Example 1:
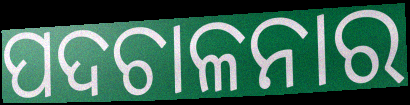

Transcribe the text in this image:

ପଦଚାଳନାର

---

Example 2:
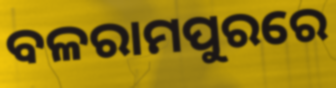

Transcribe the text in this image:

ବଳରାମପୁରରେ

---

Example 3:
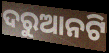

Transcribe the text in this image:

ଦରୁଆନଟି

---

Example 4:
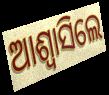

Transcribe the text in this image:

ଆଶ୍ୱାସିଲେ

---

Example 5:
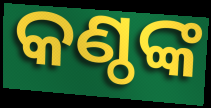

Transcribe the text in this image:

କଣ୍ଠଙ୍କ